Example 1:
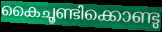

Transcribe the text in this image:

കൈചൂണ്ടിക്കൊണ്ടു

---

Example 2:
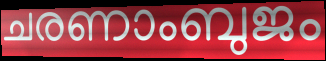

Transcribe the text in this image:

ചരണാംബുജം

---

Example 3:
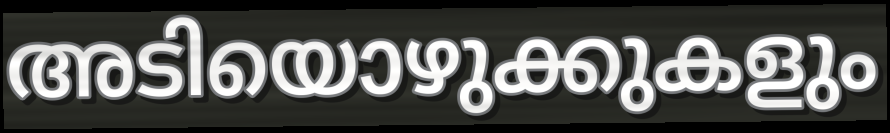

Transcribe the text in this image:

അടിയൊഴുക്കുകളും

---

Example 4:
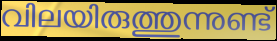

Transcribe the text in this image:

വിലയിരുത്തുന്നുണ്ട്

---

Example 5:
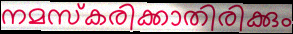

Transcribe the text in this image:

നമസ്കരിക്കാതിരിക്കും